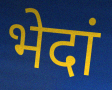
भेदां